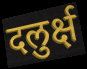
दलुर्क्ष